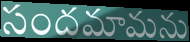
సందమామను